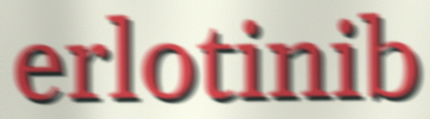
erlotinib